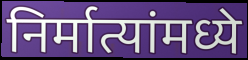
निर्मात्यांमध्ये